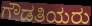
ಗೌಡತಿಯರು